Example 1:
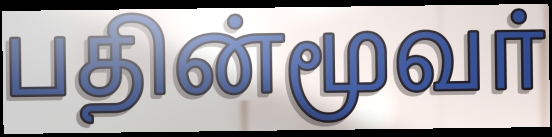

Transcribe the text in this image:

பதின்மூவர்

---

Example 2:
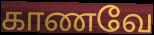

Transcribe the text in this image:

காணவே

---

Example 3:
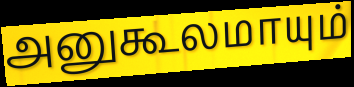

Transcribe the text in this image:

அனுகூலமாயும்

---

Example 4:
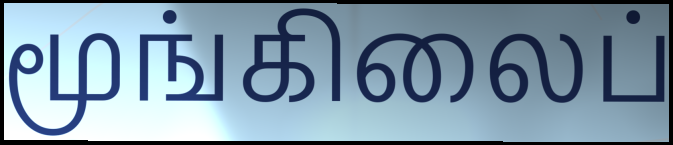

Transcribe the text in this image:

மூங்கிலைப்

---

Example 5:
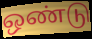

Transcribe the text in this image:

ஒண்டு